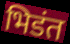
भिडंत